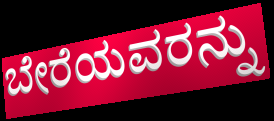
ಬೇರೆಯವರನ್ನು